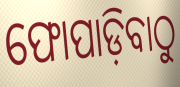
ଫୋପାଡ଼ିବାଠୁ